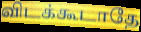
விடக்கூடாதே